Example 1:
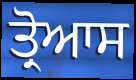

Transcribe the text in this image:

ਤ੍ਰੋਆਸ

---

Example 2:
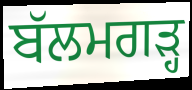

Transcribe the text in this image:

ਬੱਲਮਗੜ੍ਹ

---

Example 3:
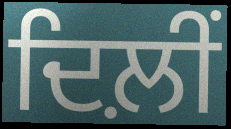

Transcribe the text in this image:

ਦਿਲ਼ੀਂ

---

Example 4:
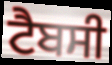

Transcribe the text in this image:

ਟੈਬਸੀ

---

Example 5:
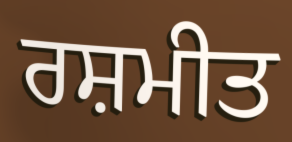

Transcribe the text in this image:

ਰਸ਼ਮੀਤ